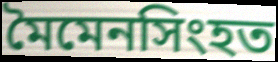
মৈমেনসিংহত